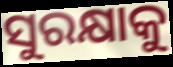
ସୁରକ୍ଷାକୁ